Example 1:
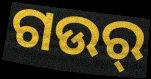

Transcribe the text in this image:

ଗଉର୍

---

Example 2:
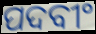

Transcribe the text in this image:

ପଦବୀଂ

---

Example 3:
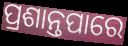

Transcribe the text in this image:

ପ୍ରଶାନ୍ତପାରେ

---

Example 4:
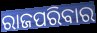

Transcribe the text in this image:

ରାଜପରିବାର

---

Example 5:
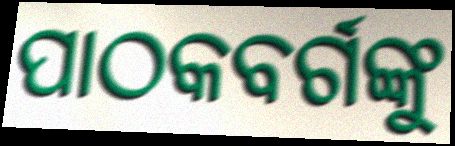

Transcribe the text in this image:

ପାଠକବର୍ଗଙ୍କୁ